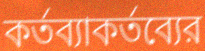
কর্তব্যাকর্তব্যের